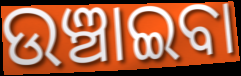
ଉଞ୍ଚାଇବା